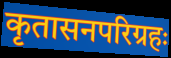
कृतासनपरिग्रहः